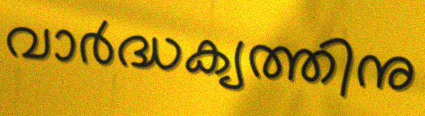
വാർദ്ധക്യത്തിനു